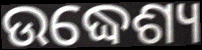
ଉଦ୍ଧେଶ୍ୟ